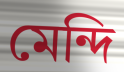
মেন্দি